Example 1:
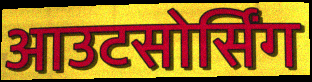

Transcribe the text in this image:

आउटसोर्सिंग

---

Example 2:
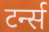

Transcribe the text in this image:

टर्न्स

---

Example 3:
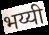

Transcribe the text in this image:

भय्यी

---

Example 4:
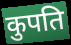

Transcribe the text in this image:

कुपति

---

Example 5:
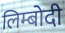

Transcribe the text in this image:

लिम्बोदी